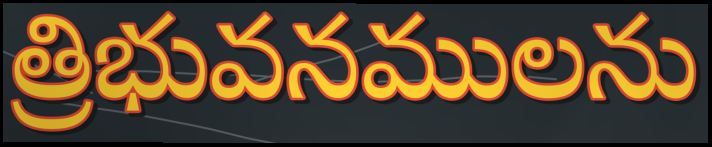
త్రిభువనములను